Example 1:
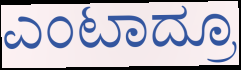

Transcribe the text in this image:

ಎಂಟಾದ್ರೂ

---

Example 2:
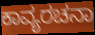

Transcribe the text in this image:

ಕಾವ್ಯರಚನಾ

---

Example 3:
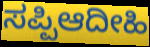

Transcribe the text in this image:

ಸಪ್ಪಿಆದೀಹಿ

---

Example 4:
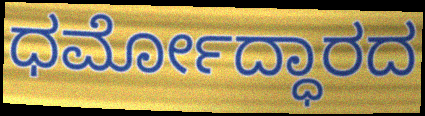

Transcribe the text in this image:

ಧರ್ಮೋದ್ಧಾರದ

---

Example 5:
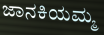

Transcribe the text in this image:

ಜಾನಕಿಯಮ್ಮ